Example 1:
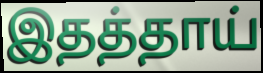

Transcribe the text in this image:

இதத்தாய்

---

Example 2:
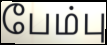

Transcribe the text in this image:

பேம்பு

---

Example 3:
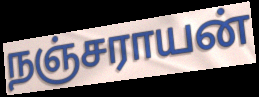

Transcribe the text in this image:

நஞ்சராயன்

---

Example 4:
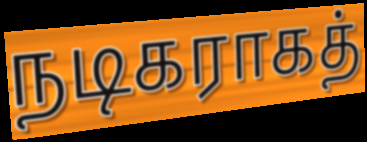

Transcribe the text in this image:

நடிகராகத்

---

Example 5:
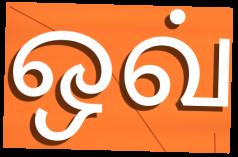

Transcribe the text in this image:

ஒவ்